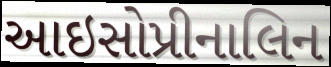
આઇસોપ્રીનાલિન